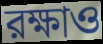
রক্ষাও